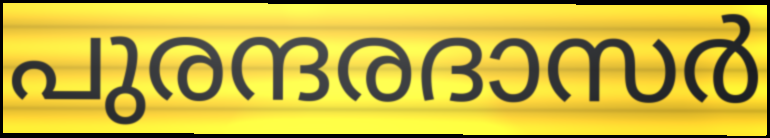
പുരന്ദരദാസർ